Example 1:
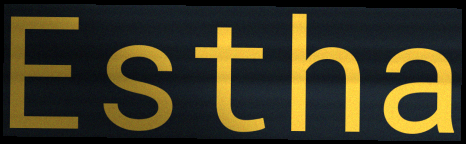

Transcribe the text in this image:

Estha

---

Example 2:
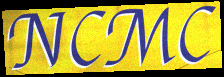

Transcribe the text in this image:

NCMC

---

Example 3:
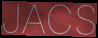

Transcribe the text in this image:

JACS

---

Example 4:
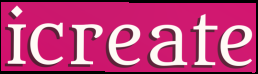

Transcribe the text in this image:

icreate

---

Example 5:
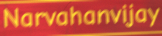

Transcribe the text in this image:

Narvahanvijay